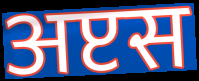
अप्टस